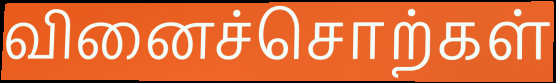
வினைச்சொற்கள்